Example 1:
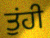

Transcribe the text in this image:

ਤੁਂਹੀ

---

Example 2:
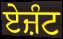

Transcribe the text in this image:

ਏਜ਼ੰਟ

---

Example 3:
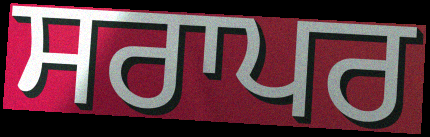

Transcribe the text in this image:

ਸਰਾਪਰ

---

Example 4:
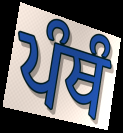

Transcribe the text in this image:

ਪੰਥੰ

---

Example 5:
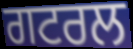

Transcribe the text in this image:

ਗਟਰਲ